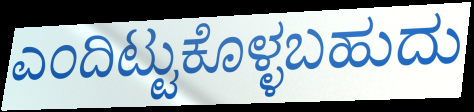
ಎಂದಿಟ್ಟುಕೊಳ್ಳಬಹುದು